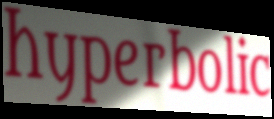
hyperbolic